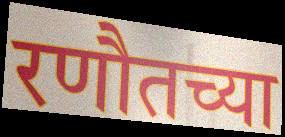
रणौतच्या